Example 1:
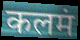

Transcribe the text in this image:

कलमं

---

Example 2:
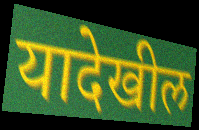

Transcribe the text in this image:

यादेखील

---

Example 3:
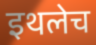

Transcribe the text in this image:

इथलेच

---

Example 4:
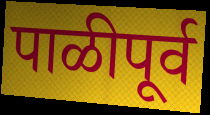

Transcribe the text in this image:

पाळीपूर्व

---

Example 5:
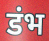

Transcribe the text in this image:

डंभ